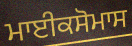
ਮਾਈਕਸੋਮਾਸ